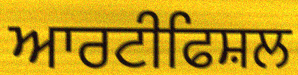
ਆਰਟੀਫਿਸ਼ਲ